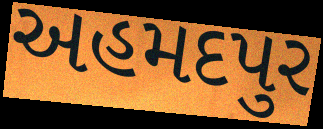
અહમદપુર